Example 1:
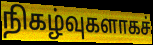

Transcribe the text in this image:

நிகழ்வுகளாகச்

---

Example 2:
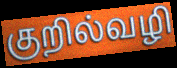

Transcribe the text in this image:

குறில்வழி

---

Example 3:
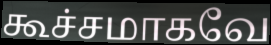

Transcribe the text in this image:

கூச்சமாகவே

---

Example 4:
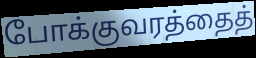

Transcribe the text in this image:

போக்குவரத்தைத்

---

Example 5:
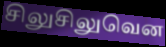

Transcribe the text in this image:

சிலுசிலுவென